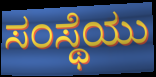
ಸಂಸ್ಥೆಯು